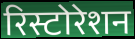
रिस्टोरेशन